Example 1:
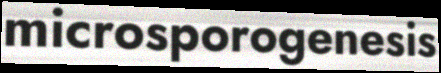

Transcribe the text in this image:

microsporogenesis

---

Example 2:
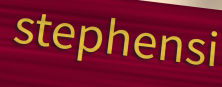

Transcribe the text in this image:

stephensi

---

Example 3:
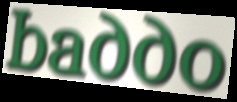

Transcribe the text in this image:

baddo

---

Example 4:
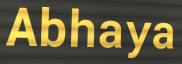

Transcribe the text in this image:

Abhaya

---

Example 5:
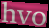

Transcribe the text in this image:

hvo